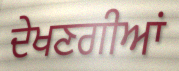
ਦੇਖਣਗੀਆਂ